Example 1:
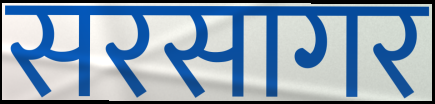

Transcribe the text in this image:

सरसागर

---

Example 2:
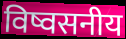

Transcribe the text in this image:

विष्वसनीय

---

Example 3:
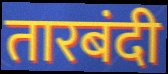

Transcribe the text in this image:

तारबंदी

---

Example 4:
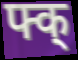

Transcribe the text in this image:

फ्क्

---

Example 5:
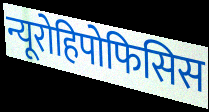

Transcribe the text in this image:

न्यूरोहिपोफिसिस